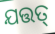
ଯତ୍ତତ୍